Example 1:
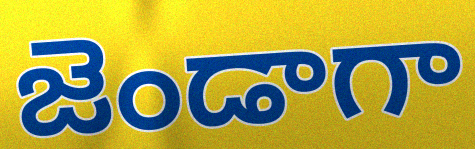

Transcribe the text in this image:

జెండాగా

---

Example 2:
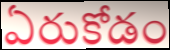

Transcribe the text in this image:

ఏరుకోడం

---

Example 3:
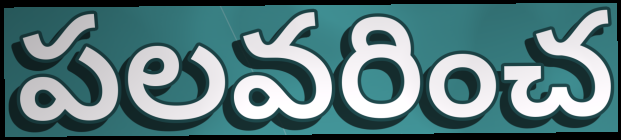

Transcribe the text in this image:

పలవరించ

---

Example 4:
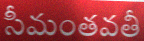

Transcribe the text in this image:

సీమంతవతీ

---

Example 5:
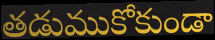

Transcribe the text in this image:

తడుముకోకుండా